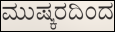
ಮುಷ್ಕರದಿಂದ